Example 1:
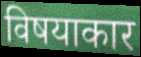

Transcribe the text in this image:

विषयाकार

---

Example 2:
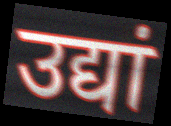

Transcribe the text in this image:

उद्यां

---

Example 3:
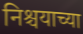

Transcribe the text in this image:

निश्चयाच्या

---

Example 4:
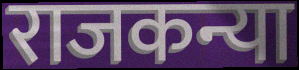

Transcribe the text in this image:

राजकन्या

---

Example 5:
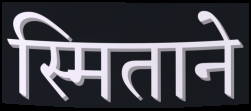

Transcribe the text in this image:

स्मिताने